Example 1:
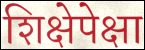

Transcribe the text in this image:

शिक्षेपेक्षा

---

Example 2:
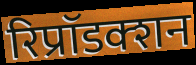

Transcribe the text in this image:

रिप्रॉडक्शन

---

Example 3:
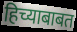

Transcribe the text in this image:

हिच्याबाबत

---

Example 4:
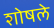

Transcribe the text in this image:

शोषले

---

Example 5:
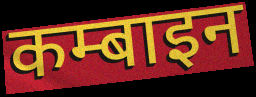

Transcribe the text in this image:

कम्बाइन